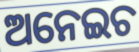
ଅନେଇଚ